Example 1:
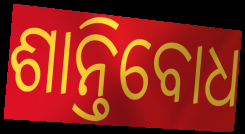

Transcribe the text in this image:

ଶାନ୍ତିବୋଧ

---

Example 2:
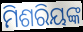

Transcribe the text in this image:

ମିଶରିୟଙ୍କ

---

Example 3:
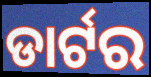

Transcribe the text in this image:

ଡାର୍ଟର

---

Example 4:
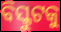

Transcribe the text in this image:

ବିସ୍କୁଟକୁ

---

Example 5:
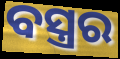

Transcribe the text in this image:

ବସ୍ତ୍ରର